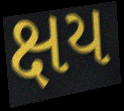
ક્ષય